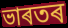
ভাৰতৰ